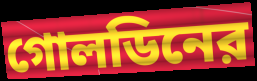
গোলডিনের